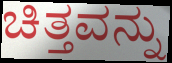
ಚಿತ್ತವನ್ನು